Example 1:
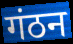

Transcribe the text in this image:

गंठन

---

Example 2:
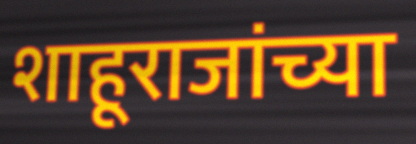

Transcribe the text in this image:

शाहूराजांच्या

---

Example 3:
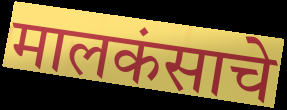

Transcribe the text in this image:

मालकंसाचे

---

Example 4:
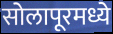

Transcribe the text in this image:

सोलापूरमध्ये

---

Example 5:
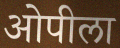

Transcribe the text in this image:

ओपीला